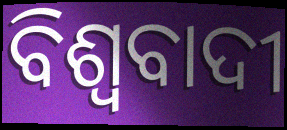
ବିଶ୍ବବାଦୀ